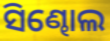
ସିଣ୍ଢୋଲ